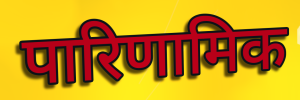
पारिणामिक